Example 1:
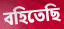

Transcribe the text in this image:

বহিতেছি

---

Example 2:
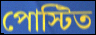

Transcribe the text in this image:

পোস্টিত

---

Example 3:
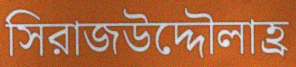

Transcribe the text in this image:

সিরাজউদ্দৌলাহ্র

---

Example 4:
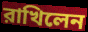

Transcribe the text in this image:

রাখিলেন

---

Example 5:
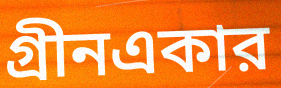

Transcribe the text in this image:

গ্রীনএকার